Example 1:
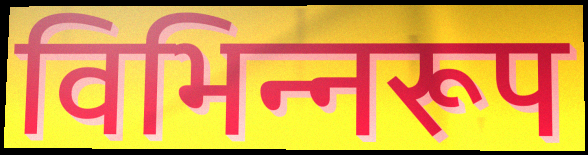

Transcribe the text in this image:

विभिन्नरूप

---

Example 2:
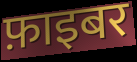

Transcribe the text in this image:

फ़ाइबर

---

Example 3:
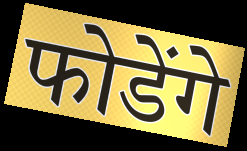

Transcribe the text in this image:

फोडेंगे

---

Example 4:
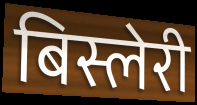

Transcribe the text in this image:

बिस्लेरी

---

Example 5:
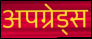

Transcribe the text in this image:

अपग्रेड्स